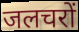
जलचरों